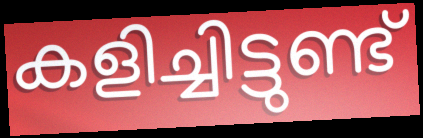
കളിച്ചിട്ടുണ്ട്